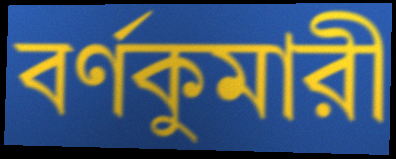
বর্ণকুমারী